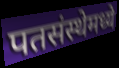
पतसंस्थेमध्ये